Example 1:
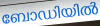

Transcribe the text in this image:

ബോഡിയിൽ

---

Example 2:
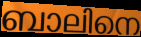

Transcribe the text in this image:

ബാലിനെ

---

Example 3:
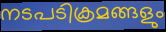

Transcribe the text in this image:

നടപടിക്രമങ്ങളും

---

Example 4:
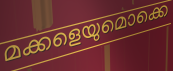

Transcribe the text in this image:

മക്കളെയുമൊക്കെ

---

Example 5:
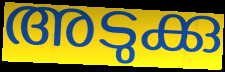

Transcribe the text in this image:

അടുക്കു